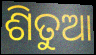
ଶିତୁଆ